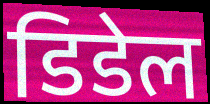
डिडेल